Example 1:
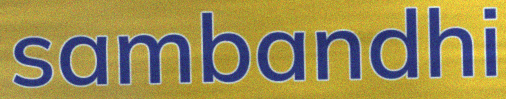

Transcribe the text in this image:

sambandhi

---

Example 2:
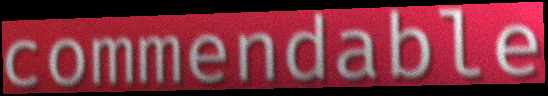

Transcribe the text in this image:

commendable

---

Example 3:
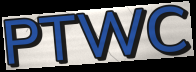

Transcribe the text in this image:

PTWC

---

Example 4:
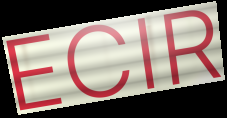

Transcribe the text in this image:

ECIR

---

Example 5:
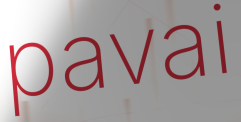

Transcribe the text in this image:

pavai